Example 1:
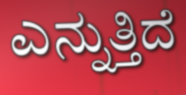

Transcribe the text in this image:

ಎನ್ನುತ್ತಿದೆ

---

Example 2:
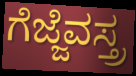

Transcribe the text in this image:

ಗೆಜ್ಜೆವಸ್ತ್ರ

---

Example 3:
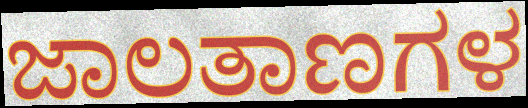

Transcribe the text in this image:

ಜಾಲತಾಣಗಳ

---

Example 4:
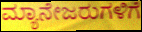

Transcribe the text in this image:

ಮ್ಯಾನೇಜರುಗಳಿಗೆ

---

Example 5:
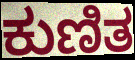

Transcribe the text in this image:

ಕುಣಿತ